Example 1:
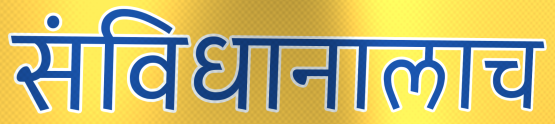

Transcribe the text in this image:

संविधानालाच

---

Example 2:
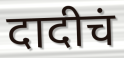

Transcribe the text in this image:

दादीचं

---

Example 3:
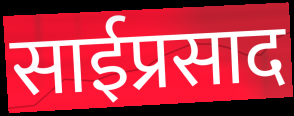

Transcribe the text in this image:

साईप्रसाद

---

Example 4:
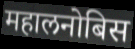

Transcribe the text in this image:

महालनोबिस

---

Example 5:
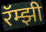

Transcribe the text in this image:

रॅम्झी